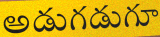
అడుగడుగూ